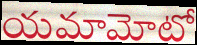
యమామోటో